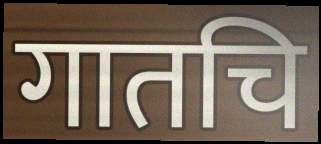
गातचि